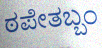
ಠಪೇತಬ್ಬಂ